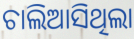
ଚାଲିଆସିଥିଲା